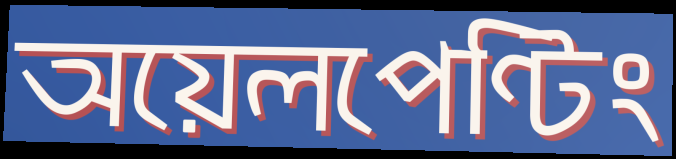
অয়েলপেণ্টিং